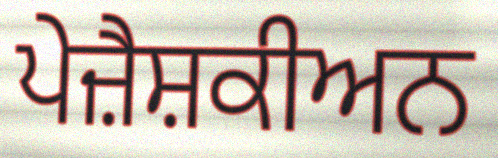
ਪੇਜ਼ੈਸ਼ਕੀਅਨ